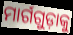
ମାର୍ଗଗୁଡ଼ାକୁ